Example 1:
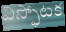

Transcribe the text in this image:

విస్ఫోటక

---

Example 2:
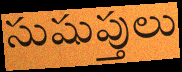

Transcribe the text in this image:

సుషుప్తులు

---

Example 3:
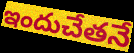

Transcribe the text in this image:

ఇందుచేతనే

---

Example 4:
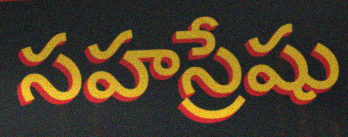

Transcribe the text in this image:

సహస్రేషు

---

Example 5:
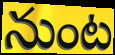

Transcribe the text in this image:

నుంట